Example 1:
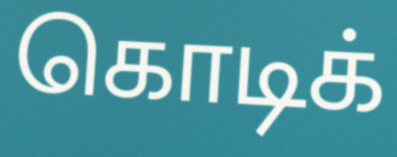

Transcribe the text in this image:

கொடிக்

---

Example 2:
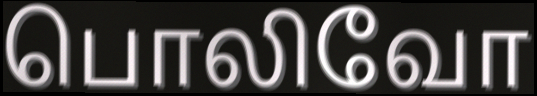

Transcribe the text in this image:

பொலிவோ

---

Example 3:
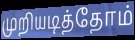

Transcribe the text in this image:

முறியடித்தோம்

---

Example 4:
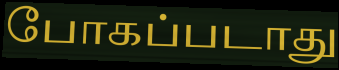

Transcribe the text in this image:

போகப்படாது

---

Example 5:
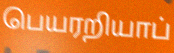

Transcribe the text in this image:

பெயரறியாப்